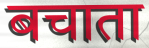
बचाता